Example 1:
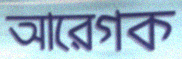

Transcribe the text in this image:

আৱেগক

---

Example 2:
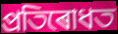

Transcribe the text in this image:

প্ৰতিৰোধত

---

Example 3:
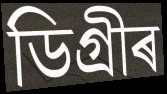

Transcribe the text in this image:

ডিগ্ৰীৰ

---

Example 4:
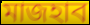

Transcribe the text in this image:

মাজহাব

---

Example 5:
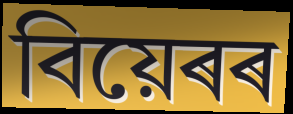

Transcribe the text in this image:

বিয়েৰৰ